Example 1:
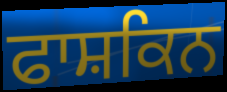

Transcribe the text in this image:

ਫਾਸ਼ਕਿਨ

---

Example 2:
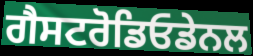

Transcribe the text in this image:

ਗੈਸਟਰੋਡਿਓਡੇਨਲ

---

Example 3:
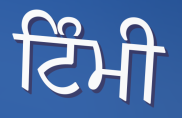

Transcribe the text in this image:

ਟਿੰਮੀ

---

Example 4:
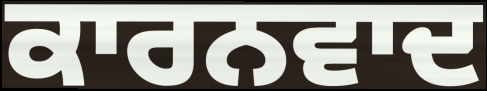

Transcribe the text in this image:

ਕਾਰਨਵਾਦ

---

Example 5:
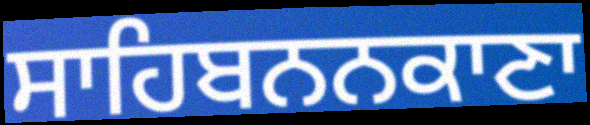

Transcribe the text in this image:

ਸਾਹਿਬਨਨਕਾਣਾ